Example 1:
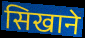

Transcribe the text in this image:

सिखाने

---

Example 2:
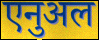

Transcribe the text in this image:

एनुअल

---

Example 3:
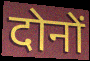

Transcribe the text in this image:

दोनों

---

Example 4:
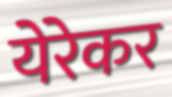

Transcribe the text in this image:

येरेकर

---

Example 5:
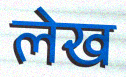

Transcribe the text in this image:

लेख